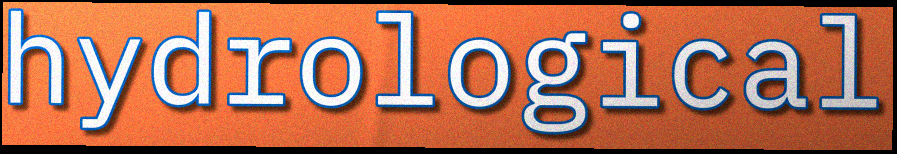
hydrological